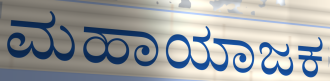
ಮಹಾಯಾಜಕ